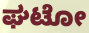
ಘಟೋ